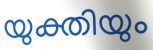
യുക്തിയും